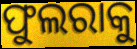
ଫୁଲରାକୁ